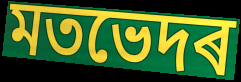
মতভেদৰ